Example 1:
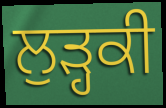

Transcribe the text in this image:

ਲੁੜ੍ਹਕੀ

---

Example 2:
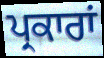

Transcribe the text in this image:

ਪ੍ਰਕਾਰਾਂ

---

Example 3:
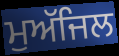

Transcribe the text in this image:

ਮੁਅੱਜਿਲ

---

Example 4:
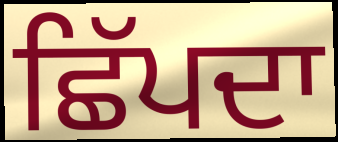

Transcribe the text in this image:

ਛਿੱਪਦਾ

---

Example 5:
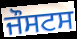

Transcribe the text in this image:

ਜੌਸਟਸ